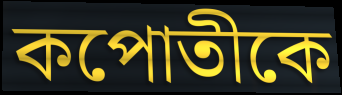
কপোতীকে